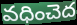
వధించెద